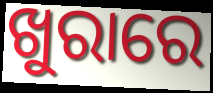
ଖୁରାରେ